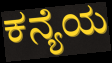
ಕನ್ಯೆಯ